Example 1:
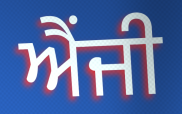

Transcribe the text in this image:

ਐਂਜੀ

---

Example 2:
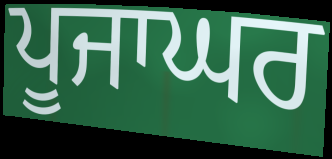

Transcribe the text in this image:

ਪੂਜਾਘਰ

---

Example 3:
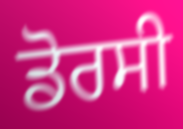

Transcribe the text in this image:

ਡੋਰਸੀ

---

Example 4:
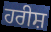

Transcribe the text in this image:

ਹਰੀਸ਼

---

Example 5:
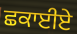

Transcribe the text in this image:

ਛਕਾਈਏ